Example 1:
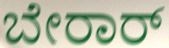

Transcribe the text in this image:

ಬೇರಾರ್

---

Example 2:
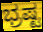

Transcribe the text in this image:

ಭ್ರಷ್ಟ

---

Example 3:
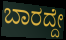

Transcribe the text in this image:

ಬಾರದ್ದೇ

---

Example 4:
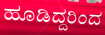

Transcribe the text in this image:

ಹೂಡಿದ್ದರಿಂದ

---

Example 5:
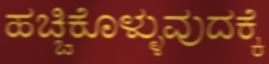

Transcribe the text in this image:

ಹಚ್ಚಿಕೊಳ್ಳುವುದಕ್ಕೆ